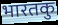
भारतकु